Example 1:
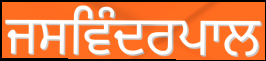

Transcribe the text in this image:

ਜਸਵਿੰਦਰਪਾਲ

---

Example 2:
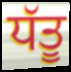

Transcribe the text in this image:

ਧੱਤੂ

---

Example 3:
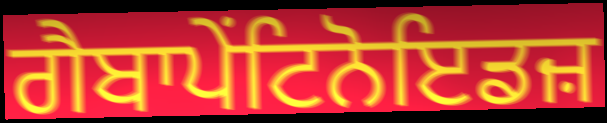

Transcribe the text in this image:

ਗੈਬਾਪੇਂਟਿਨੋਇਡਜ਼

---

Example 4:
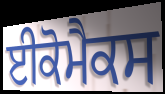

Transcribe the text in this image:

ਈਕੋਮੈਕਸ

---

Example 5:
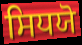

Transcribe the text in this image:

ਸਿਧਯੋ